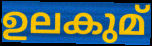
ഉലകുമ്